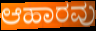
ಆಹಾರವು